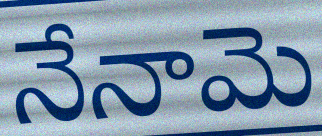
నేనామె